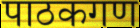
पाठकगण